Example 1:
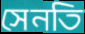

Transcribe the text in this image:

সেনতি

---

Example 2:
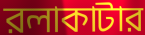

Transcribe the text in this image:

রলাকাটার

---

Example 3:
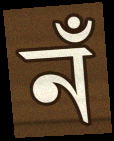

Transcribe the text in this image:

নঁ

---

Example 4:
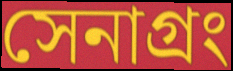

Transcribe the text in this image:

সেনাগ্রং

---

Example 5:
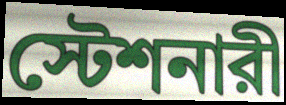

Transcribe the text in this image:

স্টেশনারী